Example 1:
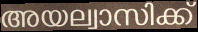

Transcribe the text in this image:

അയല്വാസിക്ക്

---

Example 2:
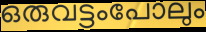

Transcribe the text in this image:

ഒരുവട്ടംപോലും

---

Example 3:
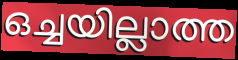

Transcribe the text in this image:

ഒച്ചയില്ലാത്ത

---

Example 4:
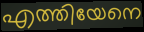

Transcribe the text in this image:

എത്തിയേനെ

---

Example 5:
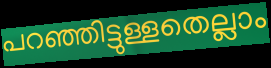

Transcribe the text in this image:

പറഞ്ഞിട്ടുള്ളതെല്ലാം